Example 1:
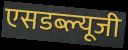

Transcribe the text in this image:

एसडब्ल्यूजी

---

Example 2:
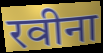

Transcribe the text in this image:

रवीना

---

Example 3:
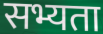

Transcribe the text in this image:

सभ्यता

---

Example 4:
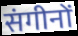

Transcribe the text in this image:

संगीनों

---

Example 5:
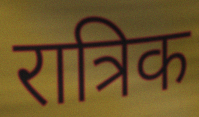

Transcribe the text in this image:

रात्रिक